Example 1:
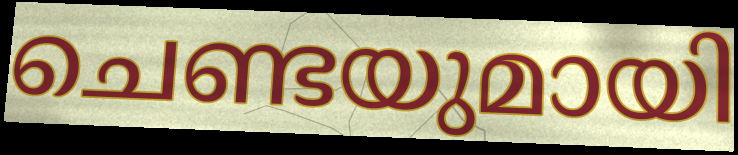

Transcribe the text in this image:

ചെണ്ടയുമായി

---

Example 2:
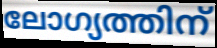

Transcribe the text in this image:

ലോഗ്യത്തിന്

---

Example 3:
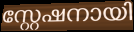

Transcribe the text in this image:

സ്റ്റേഷനായി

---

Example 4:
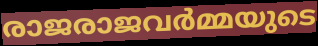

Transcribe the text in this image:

രാജരാജവർമ്മയുടെ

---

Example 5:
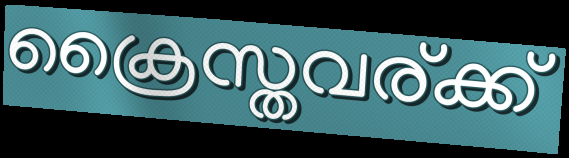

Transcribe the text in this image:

ക്രൈസ്തവര്ക്ക്